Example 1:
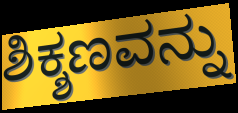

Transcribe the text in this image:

ಶಿಕ್ಶಣವನ್ನು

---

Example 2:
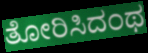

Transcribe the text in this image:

ತೋರಿಸಿದಂಥ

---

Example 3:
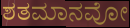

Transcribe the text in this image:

ಶತಮಾನವೋ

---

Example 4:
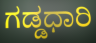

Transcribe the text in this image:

ಗಡ್ಡಧಾರಿ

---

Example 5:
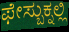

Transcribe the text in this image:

ಫೇಸ್ಬುಕ್ನಲ್ಲಿ